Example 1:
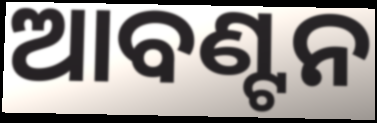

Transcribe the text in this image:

ଆବଣ୍ଟନ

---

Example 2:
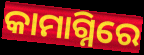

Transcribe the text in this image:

କାମାଗ୍ନିରେ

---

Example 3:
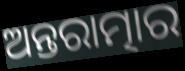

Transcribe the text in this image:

ଅନ୍ତରାତ୍ମାର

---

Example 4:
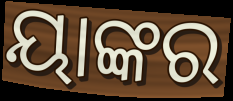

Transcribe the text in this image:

ୟାଙ୍କର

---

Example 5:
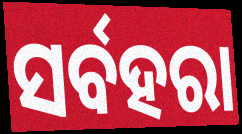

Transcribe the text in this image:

ସର୍ବହରା